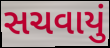
સચવાયું